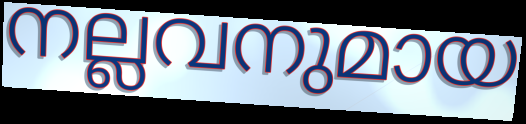
നല്ലവനുമായ